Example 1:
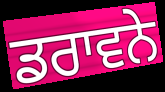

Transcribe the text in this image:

ਡਰਾਵਨੇ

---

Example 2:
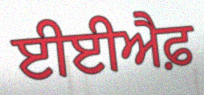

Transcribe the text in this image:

ਈਈਐਫ਼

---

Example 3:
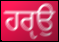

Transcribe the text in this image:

ਹਰੵਉ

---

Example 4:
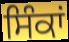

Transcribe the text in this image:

ਸਿੰਕਾਂ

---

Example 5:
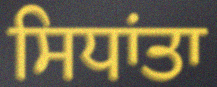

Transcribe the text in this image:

ਸਿਧਾਂਤਾ